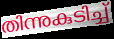
തിന്നുകുടിച്ച്